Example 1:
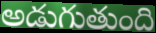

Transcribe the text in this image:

అడుగుతుంది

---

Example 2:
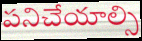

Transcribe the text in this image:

పనిచేయాల్సి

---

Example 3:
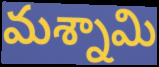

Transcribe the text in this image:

మశ్నామి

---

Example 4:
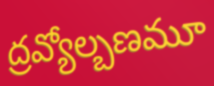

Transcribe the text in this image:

ద్రవ్యోల్బణమూ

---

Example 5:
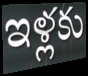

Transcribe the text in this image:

ఇళ్లకు